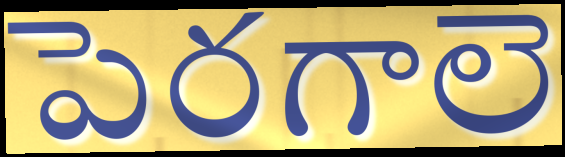
పెరగాలె